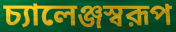
চ্যালেঞ্জস্বরূপ